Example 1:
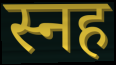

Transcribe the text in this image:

स्नह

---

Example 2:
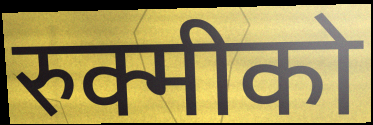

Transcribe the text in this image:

रुक्मीको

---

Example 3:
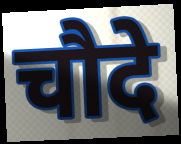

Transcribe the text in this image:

चौदे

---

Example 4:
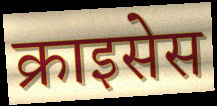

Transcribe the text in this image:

क्राइसेस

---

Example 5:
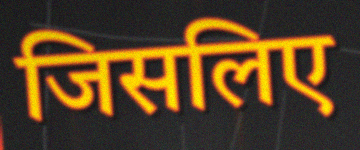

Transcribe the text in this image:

जिसलिए